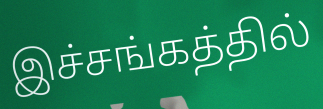
இச்சங்கத்தில்